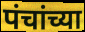
पंचांच्या